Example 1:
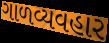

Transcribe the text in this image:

ગાળવ્યવહાર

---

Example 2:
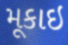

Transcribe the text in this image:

મૂકાઇ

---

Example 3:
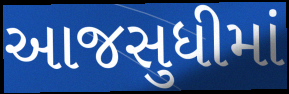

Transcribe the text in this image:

આજસુધીમાં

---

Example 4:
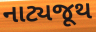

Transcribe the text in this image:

નાટ્યજૂથ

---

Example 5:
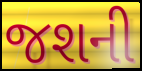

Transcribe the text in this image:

જશની